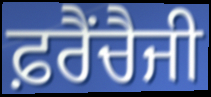
ਫ਼ਰੈਂਚੈਜੀ